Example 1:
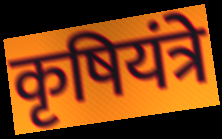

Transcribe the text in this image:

कृषियंत्रे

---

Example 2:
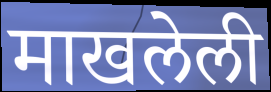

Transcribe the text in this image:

माखलेली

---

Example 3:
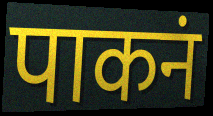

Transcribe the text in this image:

पाकनं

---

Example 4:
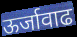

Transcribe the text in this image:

ऊर्जावाढ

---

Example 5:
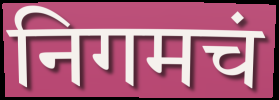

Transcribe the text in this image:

निगमचं